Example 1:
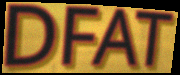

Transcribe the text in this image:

DFAT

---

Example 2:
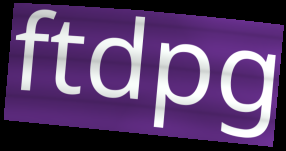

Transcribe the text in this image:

ftdpg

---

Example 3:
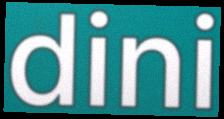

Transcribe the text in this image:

dini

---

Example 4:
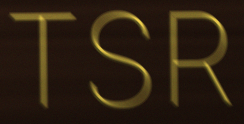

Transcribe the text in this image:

TSR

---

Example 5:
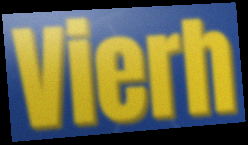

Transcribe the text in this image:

Vierh